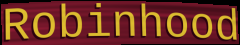
Robinhood